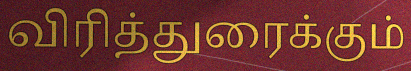
விரித்துரைக்கும்